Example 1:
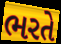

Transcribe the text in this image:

ભરતે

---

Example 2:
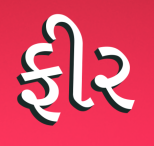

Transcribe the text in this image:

ફીર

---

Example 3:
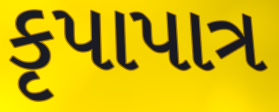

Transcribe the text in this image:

કૃપાપાત્ર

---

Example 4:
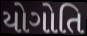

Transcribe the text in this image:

યોગોતિ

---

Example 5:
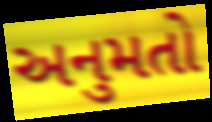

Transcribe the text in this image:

અનુમતો